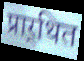
प्रार्थित